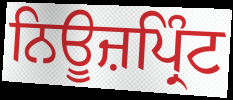
ਨਿਊਜ਼ਪ੍ਰਿੰਟ